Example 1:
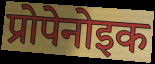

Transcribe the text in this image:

प्रोपेनोइक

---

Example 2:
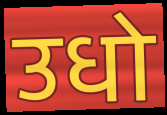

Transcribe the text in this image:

उधो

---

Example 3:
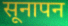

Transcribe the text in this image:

सूनापन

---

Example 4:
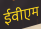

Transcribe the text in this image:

ईवीएम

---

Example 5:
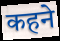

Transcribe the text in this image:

कहने